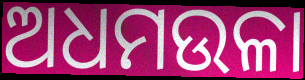
ଅଧମଉଳା